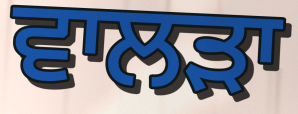
ਵਾਲੜਾ